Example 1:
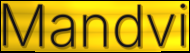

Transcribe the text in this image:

Mandvi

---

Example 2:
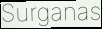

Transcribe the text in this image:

Surganas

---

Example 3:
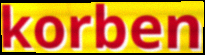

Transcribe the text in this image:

korben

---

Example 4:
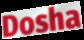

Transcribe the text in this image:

Dosha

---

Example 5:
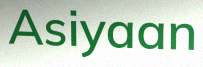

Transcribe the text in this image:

Asiyaan